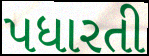
પધારતી